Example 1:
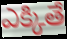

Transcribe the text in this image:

ఎక్కితే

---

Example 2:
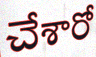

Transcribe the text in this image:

చేశారో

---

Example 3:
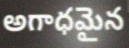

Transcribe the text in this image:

అగాధమైన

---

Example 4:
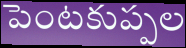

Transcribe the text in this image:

పెంటకుప్పల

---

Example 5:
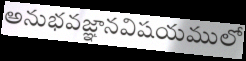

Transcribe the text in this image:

అనుభవజ్ఞానవిషయములో